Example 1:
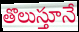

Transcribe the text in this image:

తొలుస్తూనే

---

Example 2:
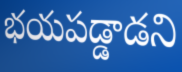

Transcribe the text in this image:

భయపడ్డాడని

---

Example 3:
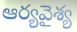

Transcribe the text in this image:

ఆర్యవైశ్య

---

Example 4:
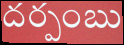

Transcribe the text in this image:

దర్పంబు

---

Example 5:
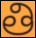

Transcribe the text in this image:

తి